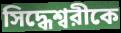
সিদ্ধেশ্বরীকে